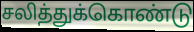
சலித்துக்கொண்டு